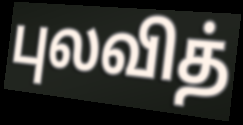
புலவித்